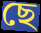
ছে